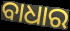
ବାଧାର